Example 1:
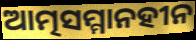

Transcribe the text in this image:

ଆତ୍ମସମ୍ମାନହୀନ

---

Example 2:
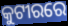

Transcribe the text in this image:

କୁଟୀରରେ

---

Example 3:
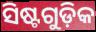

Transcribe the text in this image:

ସିଷ୍ଟଗୁଡ଼ିକ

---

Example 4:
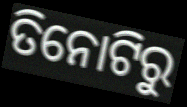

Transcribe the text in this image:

ତିନୋଟିରୁ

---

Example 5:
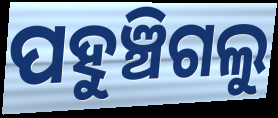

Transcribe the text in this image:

ପହୁଞ୍ଚିଗଲୁ